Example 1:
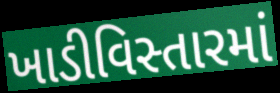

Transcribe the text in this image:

ખાડીવિસ્તારમાં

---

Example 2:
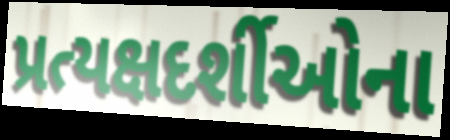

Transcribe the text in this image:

પ્રત્યક્ષદર્શીઓના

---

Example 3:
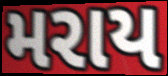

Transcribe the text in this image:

મરાય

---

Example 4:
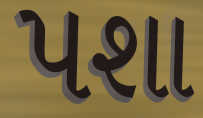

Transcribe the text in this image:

પશા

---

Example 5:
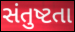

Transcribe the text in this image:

સંતુષ્ટતા